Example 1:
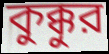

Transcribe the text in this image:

কুক্কুর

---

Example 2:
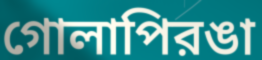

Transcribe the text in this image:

গোলাপিরঙা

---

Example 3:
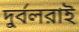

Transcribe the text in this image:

দুর্বলরাই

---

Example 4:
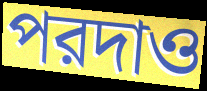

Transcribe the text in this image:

পরদাও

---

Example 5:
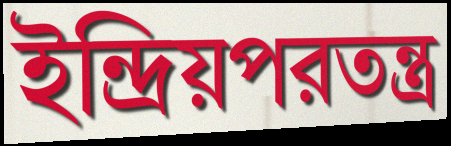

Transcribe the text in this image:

ইন্দ্রিয়পরতন্ত্র